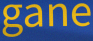
gane